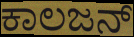
ಕಾಲಜನ್